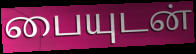
பையுடன்